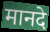
मानदे